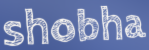
shobha